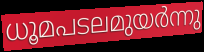
ധൂമപടലമുയർന്നു